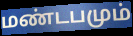
மண்டபமும்